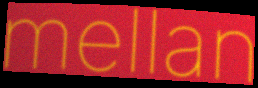
mellan